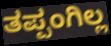
ತಪ್ಪಂಗಿಲ್ಲ